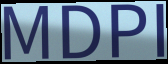
MDPI